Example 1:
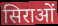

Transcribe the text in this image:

सिराओं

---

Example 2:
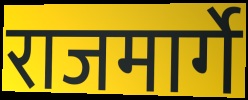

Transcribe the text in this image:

राजमार्गे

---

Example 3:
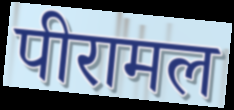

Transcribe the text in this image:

पीरामल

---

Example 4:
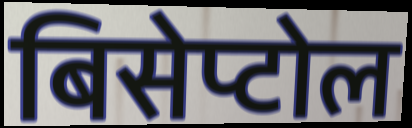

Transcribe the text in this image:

बिसेप्टोल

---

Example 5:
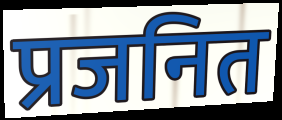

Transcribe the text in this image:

प्रजनित